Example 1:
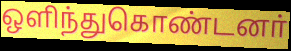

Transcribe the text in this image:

ஒளிந்துகொண்டனர்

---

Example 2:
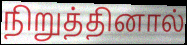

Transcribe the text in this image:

நிறுத்தினால்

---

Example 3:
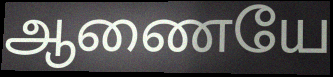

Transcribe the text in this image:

ஆணையே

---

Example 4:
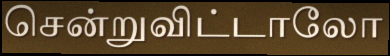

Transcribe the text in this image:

சென்றுவிட்டாலோ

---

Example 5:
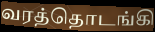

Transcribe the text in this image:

வரத்தொடங்கி